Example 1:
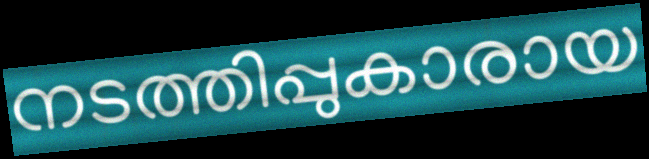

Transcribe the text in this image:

നടത്തിപ്പുകാരായ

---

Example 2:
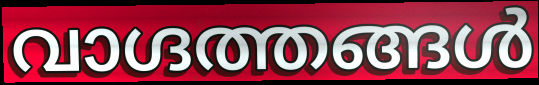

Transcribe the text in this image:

വാഗ്ദത്തങ്ങൾ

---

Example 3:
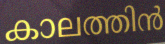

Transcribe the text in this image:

കാലത്തിൻ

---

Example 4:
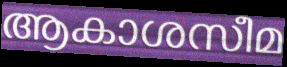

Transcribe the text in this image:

ആകാശസീമ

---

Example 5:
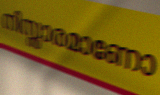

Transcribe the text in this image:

നിസ്സാരമാണോ